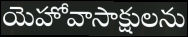
యెహోవాసాక్షులను